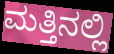
ಮತ್ತಿನಲ್ಲಿ